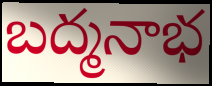
బద్మనాభ